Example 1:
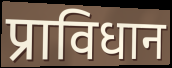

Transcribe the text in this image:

प्राविधान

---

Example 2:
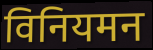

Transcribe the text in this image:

विनियमन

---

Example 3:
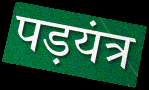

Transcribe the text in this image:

पड़यंत्र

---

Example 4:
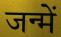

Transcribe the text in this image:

जन्में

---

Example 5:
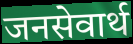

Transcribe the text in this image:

जनसेवार्थ